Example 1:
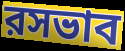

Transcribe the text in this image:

রসভাব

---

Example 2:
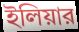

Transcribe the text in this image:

ইলিয়ার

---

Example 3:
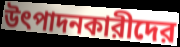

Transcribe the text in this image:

উৎপাদনকারীদের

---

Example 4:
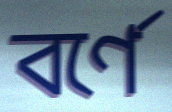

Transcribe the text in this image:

বর্ণে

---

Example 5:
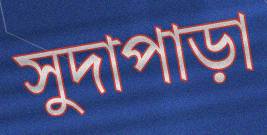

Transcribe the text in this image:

সুদাপাড়া